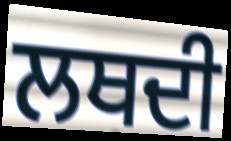
ਲਥਦੀ